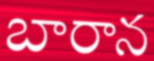
బారాన